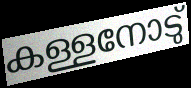
കള്ളനോടു്